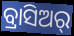
ବ୍ରାସିଅର୍